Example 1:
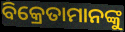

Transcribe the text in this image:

ବିକ୍ରେତାମାନଙ୍କୁ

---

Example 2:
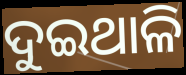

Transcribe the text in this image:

ଦୁଇଥାଳି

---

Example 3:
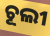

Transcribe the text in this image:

ଚୂଲୀ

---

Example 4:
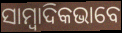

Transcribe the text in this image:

ସାମ୍ୱାଦିକଭାବେ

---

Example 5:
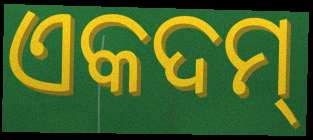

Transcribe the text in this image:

ଏକଦମ୍